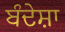
ਬੰਦੇਸ਼ਾ